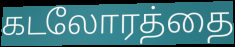
கடலோரத்தை